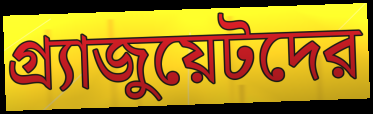
গ্র্যাজুয়েটদের